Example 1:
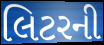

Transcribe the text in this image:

લિટરની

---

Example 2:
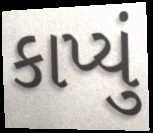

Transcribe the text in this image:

કાપ્યું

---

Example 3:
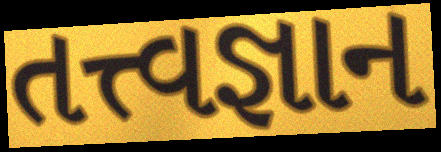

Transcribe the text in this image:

તત્ત્વજ્ઞાન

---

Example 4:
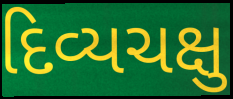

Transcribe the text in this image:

દિવ્યચક્ષુ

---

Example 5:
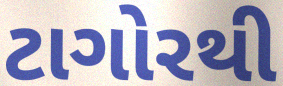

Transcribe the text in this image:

ટાગોરથી